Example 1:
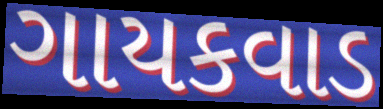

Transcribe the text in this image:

ગાયકવાડ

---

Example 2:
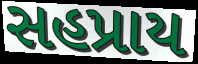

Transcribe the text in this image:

સહપ્રાય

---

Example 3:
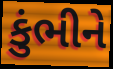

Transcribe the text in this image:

કુંભીને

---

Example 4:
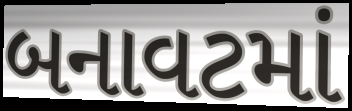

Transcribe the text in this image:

બનાવટમાં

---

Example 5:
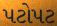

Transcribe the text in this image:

પટોપટ